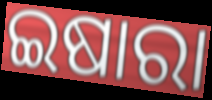
ଇଷାରା